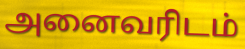
அனைவரிடம்